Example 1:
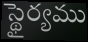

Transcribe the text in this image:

స్థైర్యము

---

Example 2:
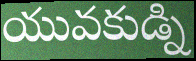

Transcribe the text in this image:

యువకుడ్ని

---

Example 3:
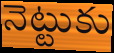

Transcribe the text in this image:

నెట్టుకు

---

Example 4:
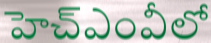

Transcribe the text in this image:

హెచ్ఎంవీలో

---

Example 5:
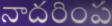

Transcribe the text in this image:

నాదరింప